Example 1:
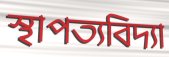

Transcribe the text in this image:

স্থাপত্যবিদ্যা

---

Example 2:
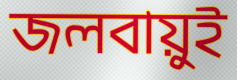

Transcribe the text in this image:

জলবায়ুই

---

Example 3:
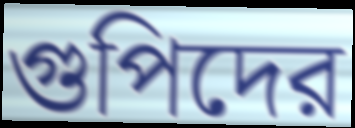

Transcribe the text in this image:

গুপিদের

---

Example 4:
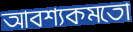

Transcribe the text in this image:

আবশ্যকমতো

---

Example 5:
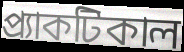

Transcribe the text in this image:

প্র্যাকটিকাল